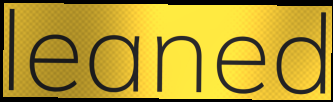
leaned